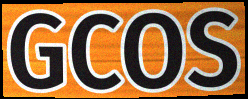
GCOS